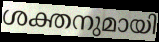
ശക്തനുമായി